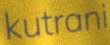
kutrani